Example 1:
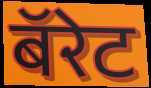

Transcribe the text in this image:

बॅरेट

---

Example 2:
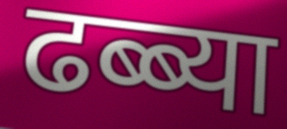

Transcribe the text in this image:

ढब्ब्या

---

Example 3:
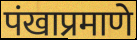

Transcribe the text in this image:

पंखाप्रमाणे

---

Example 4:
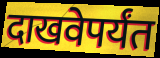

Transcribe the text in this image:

दाखवेपर्यंत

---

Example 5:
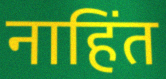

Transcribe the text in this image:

नाहिंत